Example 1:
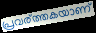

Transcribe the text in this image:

പ്രവര്ത്തകയാണ്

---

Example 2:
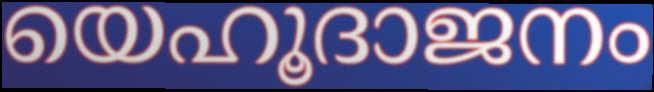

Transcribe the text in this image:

യെഹൂദാജനം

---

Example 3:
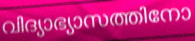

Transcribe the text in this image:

വിദ്യാഭ്യാസത്തിനോ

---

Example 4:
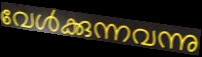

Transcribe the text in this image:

വേൾക്കുന്നവന്നു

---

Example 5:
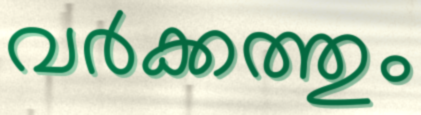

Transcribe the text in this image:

വർക്കത്തും